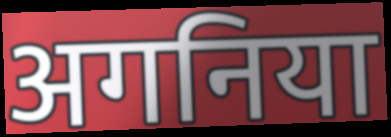
अगनिया